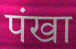
पंखा